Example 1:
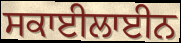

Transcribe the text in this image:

ਸਕਾਈਲਾਈਨ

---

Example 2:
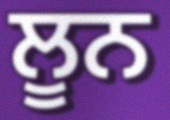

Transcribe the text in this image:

ਲੂਨ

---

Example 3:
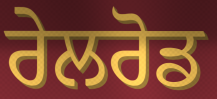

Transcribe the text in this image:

ਰੇਲਰੋਡ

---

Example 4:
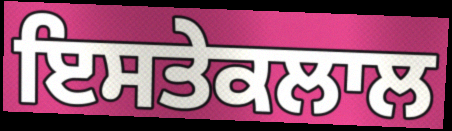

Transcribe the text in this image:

ਇਸਤੇਕਲਾਲ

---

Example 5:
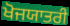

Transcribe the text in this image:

ਖੋਜਯਾਤਰੀ